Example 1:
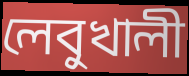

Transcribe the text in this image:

লেবুখালী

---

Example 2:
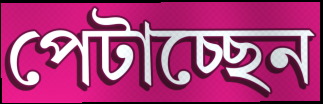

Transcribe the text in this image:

পেটাচ্ছেন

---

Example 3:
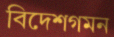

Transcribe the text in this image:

বিদেশগমন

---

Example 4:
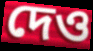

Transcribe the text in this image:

দেও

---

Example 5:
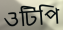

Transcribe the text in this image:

ওটিপি